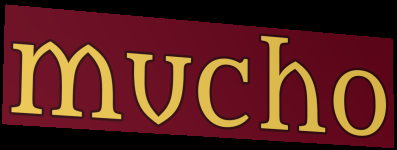
mucho